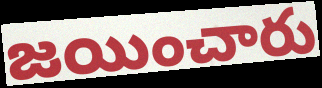
జయించారు